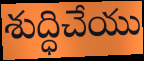
శుద్ధిచేయు